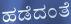
ಹಡೆದಂತೆ